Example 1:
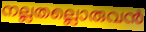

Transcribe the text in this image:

നല്ലതല്ലൊരുവൻ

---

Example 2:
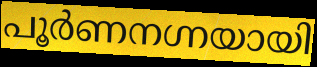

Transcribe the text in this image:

പൂർണനഗ്നയായി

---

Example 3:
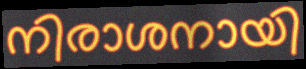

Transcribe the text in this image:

നിരാശനായി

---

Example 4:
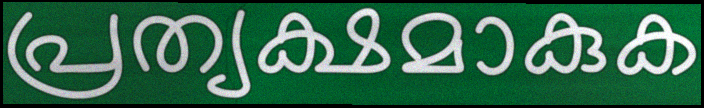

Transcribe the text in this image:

പ്രത്യക്ഷമാകുക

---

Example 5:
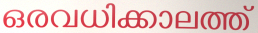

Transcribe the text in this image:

ഒരവധിക്കാലത്ത്